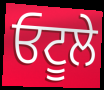
ਓਟੂਲੇ